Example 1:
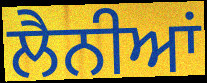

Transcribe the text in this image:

ਲੈਨੀਆਂ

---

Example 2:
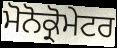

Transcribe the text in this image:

ਮੋਨੋਕ੍ਰੋਮੇਟਰ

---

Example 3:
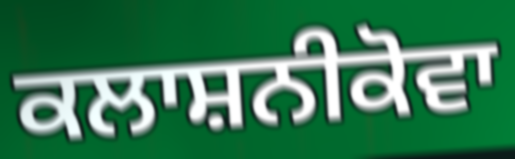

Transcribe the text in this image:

ਕਲਾਸ਼ਨੀਕੋਵਾ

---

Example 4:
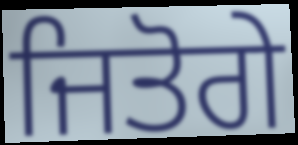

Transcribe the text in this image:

ਜਿਤੋਗੇ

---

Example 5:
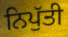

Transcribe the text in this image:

ਨਿਪੁੱਤੀ